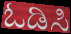
ಓಡಿಸಿ